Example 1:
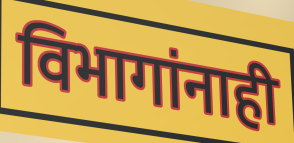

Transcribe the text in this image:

विभागांनाही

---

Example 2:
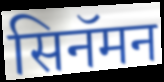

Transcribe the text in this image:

सिनॅमन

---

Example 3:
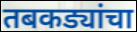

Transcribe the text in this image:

तबकड्यांचा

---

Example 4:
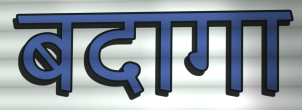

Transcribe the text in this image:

बदागा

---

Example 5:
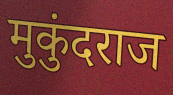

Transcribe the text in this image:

मुकुंदराज